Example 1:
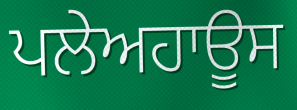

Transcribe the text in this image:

ਪਲੇਅਹਾਊਸ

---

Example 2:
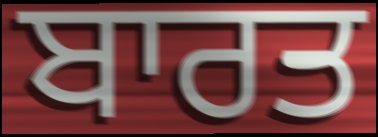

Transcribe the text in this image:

ਬਾਰਤ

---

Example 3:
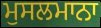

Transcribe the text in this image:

ਮੁਸਲਮਾਨਾ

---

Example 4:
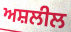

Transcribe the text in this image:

ਅਸ਼ਲੀਲ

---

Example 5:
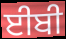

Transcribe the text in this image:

ਈਬੀ